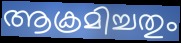
ആക്രമിച്ചതും